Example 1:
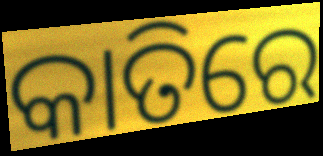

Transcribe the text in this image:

କାତିରେ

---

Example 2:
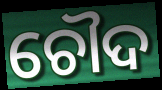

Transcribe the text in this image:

ଚୌଦ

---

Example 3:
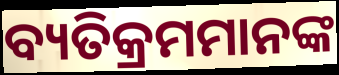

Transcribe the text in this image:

ବ୍ୟତିକ୍ରମମାନଙ୍କ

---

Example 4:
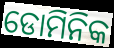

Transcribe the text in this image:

ଡୋମିନିକ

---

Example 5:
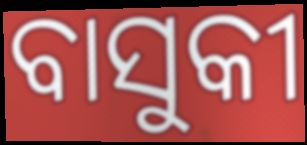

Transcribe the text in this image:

ବାସୁକୀ